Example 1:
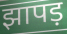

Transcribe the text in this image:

झापड़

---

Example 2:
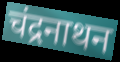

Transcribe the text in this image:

चंद्रनाथन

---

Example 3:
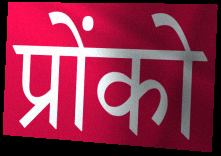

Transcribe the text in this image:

प्रोंको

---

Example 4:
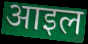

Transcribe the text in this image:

आइल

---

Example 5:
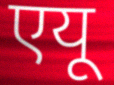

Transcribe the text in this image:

एयू